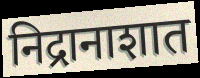
निद्रानाशात